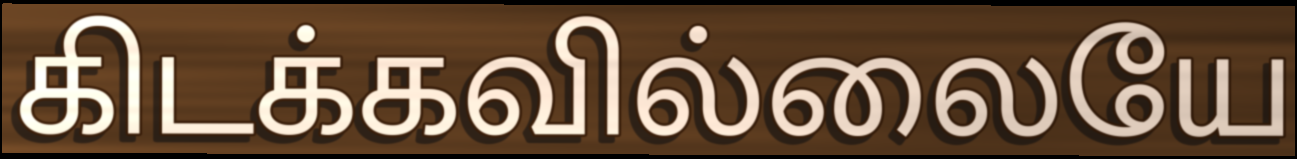
கிடக்கவில்லையே